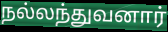
நல்லந்துவனார்